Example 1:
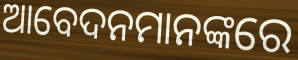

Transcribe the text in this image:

ଆବେଦନମାନଙ୍କରେ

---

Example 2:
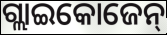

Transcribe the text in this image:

ଗ୍ଲାଇକୋଜେନ୍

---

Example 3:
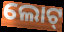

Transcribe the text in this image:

ଲୋଟ୍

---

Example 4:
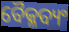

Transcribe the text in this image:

ବୈକ୍ଳବ୍ୟଂ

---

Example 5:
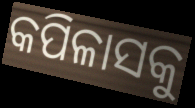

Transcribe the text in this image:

କପିଳାସକୁ